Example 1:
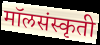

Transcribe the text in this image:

मॉलसंस्कृती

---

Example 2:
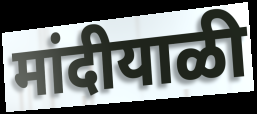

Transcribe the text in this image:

मांदीयाळी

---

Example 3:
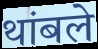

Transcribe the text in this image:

थांबले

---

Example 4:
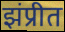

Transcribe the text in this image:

झंप्रीत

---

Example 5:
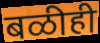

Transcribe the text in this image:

बळीही